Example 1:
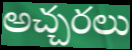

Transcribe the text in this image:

అచ్చరలు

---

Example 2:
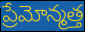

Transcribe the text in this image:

ప్రేమోన్మత్త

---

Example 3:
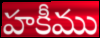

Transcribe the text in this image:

హకీము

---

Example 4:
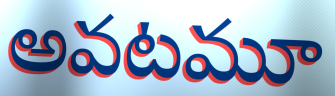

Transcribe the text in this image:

అవటమూ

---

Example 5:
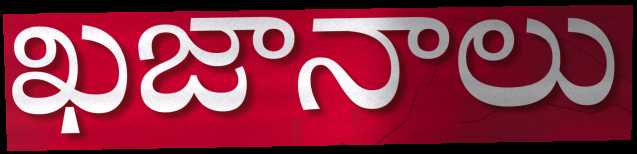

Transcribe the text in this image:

ఖజానాలు